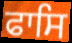
ਫਾਸਿ